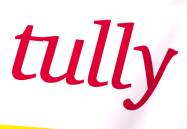
tully